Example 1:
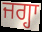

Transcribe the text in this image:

ਜਗ੍ਹਾ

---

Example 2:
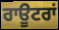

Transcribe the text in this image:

ਰਾਊਟਰਾਂ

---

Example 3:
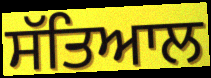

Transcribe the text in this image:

ਸੱਤਿਆਲ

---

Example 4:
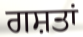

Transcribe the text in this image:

ਗਸ਼ਤਾਂ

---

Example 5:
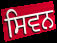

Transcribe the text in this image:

ਸਿਵਨ